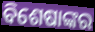
ବିଶେଷାଙ୍କର